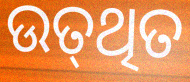
ଉତ୍‍ଥିତ